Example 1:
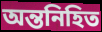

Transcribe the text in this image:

অন্তনিহিত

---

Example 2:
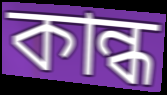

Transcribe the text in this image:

কান্ধ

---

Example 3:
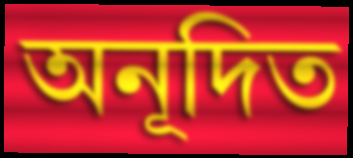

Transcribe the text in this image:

অনূদিত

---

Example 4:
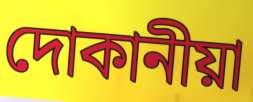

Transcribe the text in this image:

দোকানীয়া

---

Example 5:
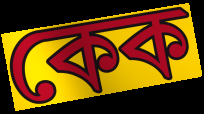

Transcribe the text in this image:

কেক